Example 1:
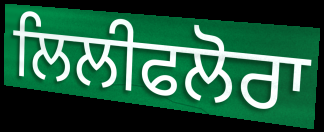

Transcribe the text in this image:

ਲਿਲੀਫਲੋਰਾ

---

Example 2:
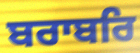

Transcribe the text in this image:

ਬਰਾਬਰਿ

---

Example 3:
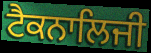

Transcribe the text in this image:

ਟੈਕਨਾਲਿਜੀ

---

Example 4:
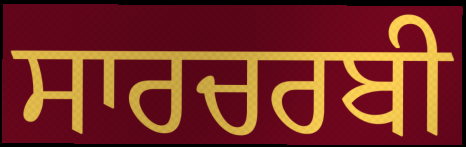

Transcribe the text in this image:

ਸਾਰਚਰਬੀ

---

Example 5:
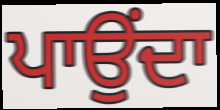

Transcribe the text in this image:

ਪਾਉਂਦਾ